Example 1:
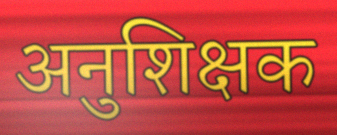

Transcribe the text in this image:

अनुशिक्षक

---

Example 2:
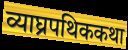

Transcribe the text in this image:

व्याघ्रपथिककथा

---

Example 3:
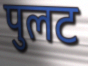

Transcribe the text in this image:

पुलट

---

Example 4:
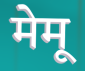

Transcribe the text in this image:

मेमू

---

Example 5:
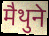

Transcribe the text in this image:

मैथुने